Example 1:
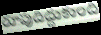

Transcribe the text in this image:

రూపుదిద్దుకుంది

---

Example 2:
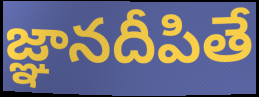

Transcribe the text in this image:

జ్ఞానదీపితే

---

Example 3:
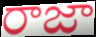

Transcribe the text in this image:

రాజా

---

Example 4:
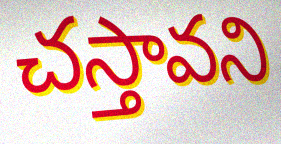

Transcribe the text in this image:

చస్తావని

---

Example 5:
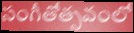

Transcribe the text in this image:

సంగీతోత్సవంలో